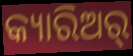
କ୍ୟାରିଅର୍